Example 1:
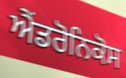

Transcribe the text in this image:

ਐਂਡਰੋਨਿਕੋਸ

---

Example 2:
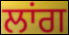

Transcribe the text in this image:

ਲਾਂਗ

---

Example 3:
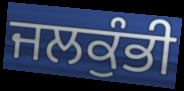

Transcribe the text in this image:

ਜਲਕੁੰਭੀ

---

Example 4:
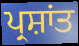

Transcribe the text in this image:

ਪ੍ਰਸ਼ਾਂਤ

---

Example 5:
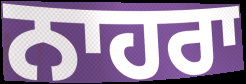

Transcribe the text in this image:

ਨਾਹਰਾ